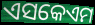
ଏସକେଏମ